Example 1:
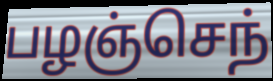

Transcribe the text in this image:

பழஞ்செந்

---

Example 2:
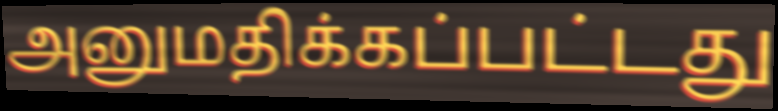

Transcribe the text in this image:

அனுமதிக்கப்பட்டது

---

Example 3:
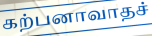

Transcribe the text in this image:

கற்பனாவாதச்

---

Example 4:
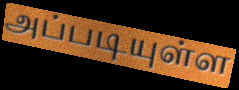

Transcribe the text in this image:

அப்படியுள்ள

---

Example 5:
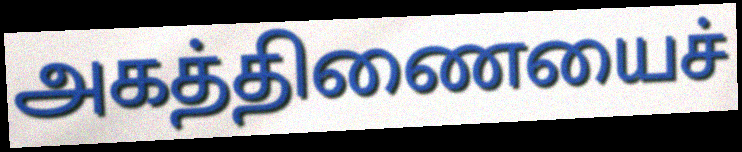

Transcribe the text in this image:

அகத்திணையைச்